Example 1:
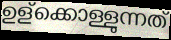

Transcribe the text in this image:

ഉള്ക്കൊള്ളുന്നത്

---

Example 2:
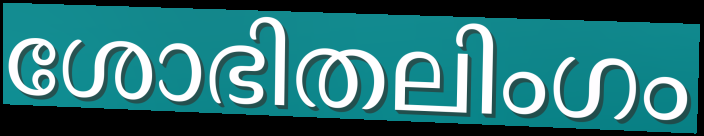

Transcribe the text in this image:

ശോഭിതലിംഗം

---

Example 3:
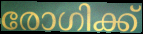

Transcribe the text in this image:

രോഗിക്ക്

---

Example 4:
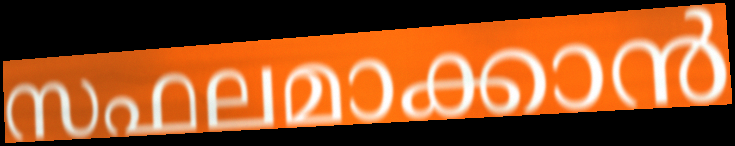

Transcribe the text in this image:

സഫലമാക്കാൻ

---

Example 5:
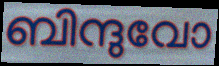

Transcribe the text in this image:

ബിന്ദുവോ